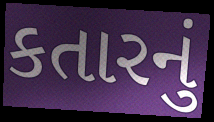
કતારનું